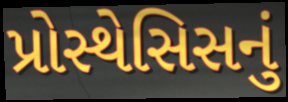
પ્રોસ્થેસિસનું